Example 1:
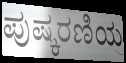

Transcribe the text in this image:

ಪುಷ್ಕರಣಿಯ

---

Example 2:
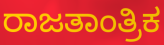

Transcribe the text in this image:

ರಾಜತಾಂತ್ರಿಕ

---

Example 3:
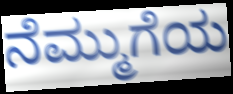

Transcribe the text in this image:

ನೆಮ್ಮುಗೆಯ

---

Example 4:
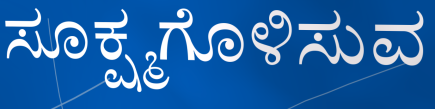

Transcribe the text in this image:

ಸೂಕ್ಷ್ಮಗೊಳಿಸುವ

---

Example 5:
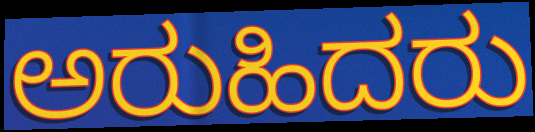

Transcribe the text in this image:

ಅರುಹಿದರು